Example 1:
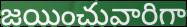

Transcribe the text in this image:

జయించువారిగా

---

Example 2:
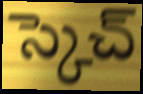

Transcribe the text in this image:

స్కెచ్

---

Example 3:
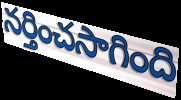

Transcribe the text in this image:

నర్తించసాగింది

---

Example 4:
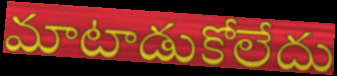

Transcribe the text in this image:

మాటాడుకోలేదు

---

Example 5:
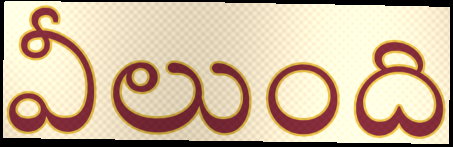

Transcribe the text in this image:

వీలుంది